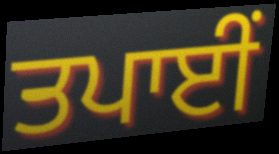
ਤਪਾਈਂ